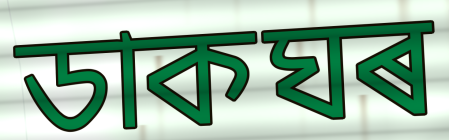
ডাকঘৰ